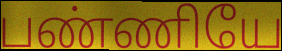
பண்ணியே